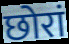
छोरां